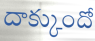
దాక్కుందో